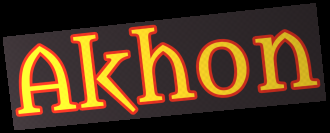
Akhon